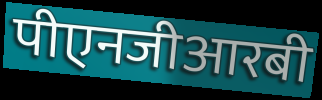
पीएनजीआरबी